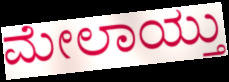
ಮೇಲಾಯ್ತು